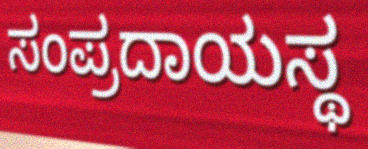
ಸಂಪ್ರದಾಯಸ್ಥ